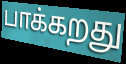
பாக்கறது